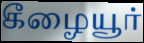
கீழையூர்